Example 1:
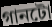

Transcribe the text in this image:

গানটো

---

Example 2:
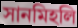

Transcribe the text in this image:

সানমিহলি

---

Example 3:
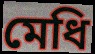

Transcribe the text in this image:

মেধি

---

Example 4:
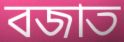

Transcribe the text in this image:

বজাত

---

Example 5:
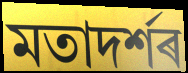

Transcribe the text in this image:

মতাদৰ্শৰ